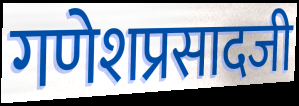
गणेशप्रसादजी